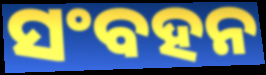
ସଂବହନ